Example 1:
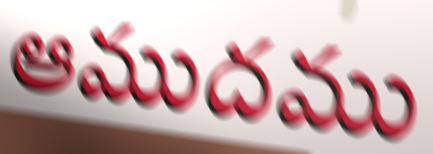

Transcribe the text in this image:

ఆముదము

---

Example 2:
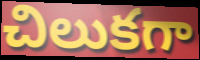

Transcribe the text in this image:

చిలుకగా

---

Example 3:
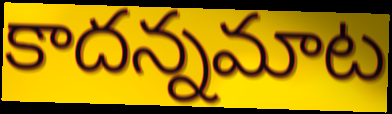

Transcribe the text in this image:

కాదన్నమాట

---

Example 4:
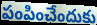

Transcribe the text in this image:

పంపించేందుకు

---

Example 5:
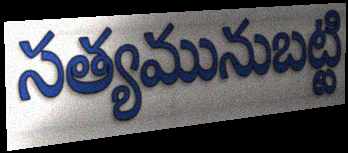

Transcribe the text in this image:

సత్యమునుబట్టి